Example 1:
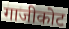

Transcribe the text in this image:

गाजीकोट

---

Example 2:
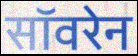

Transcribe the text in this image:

सॉवरेन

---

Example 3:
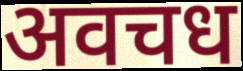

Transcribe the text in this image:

अवचध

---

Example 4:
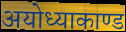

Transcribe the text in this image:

अयोध्याकाण्ड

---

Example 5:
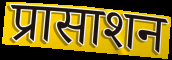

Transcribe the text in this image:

प्रासाशन